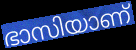
ഭാസിയാണ്